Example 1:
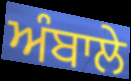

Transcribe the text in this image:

ਅੰਬਾਲੇ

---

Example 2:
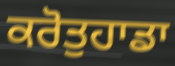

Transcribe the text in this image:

ਕਰੋਤੁਹਾਡਾ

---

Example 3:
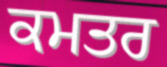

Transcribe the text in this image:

ਕਮਤਰ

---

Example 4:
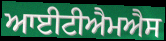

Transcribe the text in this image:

ਆਈਟੀਐਮਐਸ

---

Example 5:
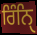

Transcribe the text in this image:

ਰਿੰਨਿੑ